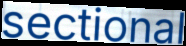
sectional